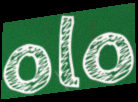
olo